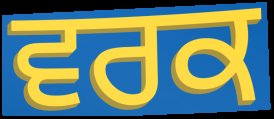
ਵਰਕ